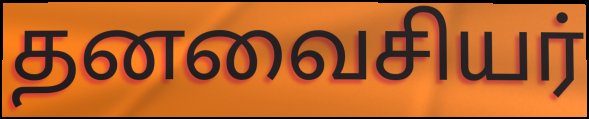
தனவைசியர்